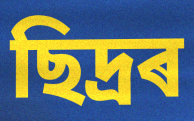
ছিদ্ৰৰ